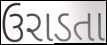
ઉરાડતા